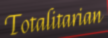
Totalitarian